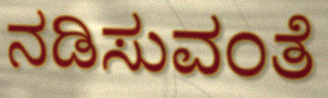
ನಡಿಸುವಂತೆ